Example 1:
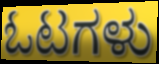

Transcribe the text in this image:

ಓಟಗಳು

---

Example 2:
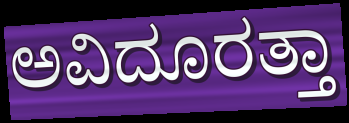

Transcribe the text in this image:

ಅವಿದೂರತ್ತಾ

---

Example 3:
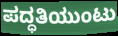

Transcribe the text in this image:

ಪದ್ಧತಿಯುಂಟು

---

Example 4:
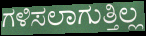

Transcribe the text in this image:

ಗಳಿಸಲಾಗುತ್ತಿಲ್ಲ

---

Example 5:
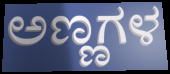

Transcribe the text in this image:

ಅಣ್ಣಗಳ